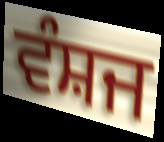
ਵੰਸ਼ਜ